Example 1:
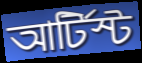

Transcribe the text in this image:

আর্টিস্ট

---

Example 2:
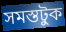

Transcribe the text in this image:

সমস্তটুক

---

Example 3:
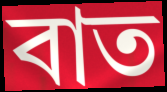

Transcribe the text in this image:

বাত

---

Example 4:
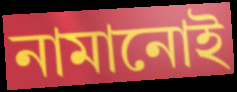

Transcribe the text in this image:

নামানোই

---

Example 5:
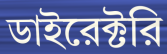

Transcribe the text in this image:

ডাইরেক্টরি